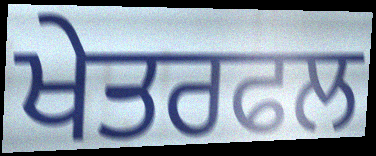
ਖੇਤਰਫਲ